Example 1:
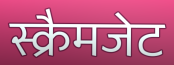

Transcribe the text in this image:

स्‍क्रैमजेट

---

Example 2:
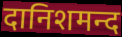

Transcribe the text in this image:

दानिशमन्द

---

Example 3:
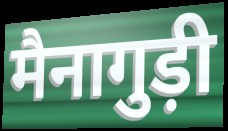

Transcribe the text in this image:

मैनागुड़ी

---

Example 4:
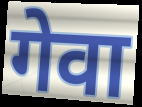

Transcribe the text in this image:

गेवा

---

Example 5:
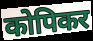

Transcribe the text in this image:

कोपिकर